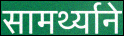
सामर्थ्याने